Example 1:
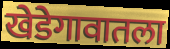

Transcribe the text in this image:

खेडेगावातला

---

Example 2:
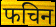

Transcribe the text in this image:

फचिन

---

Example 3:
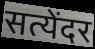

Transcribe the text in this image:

सत्येंदर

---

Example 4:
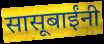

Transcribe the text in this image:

सासूबाईंनी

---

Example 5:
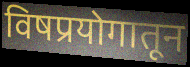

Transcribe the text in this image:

विषप्रयोगातून